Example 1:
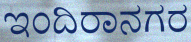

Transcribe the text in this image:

ಇಂದಿರಾನಗರ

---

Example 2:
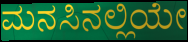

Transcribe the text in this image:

ಮನಸಿನಲ್ಲಿಯೇ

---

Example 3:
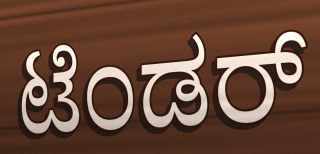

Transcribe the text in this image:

ಟೆಂಡರ್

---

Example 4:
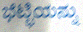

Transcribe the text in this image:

ಭೆಟ್ಟಿಯನ್ನು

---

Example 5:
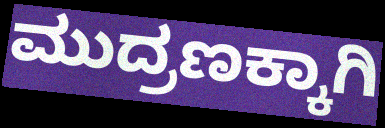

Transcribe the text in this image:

ಮುದ್ರಣಕ್ಕಾಗಿ